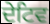
ਦੇਟਿਵ